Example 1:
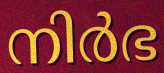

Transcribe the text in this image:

നിർഭ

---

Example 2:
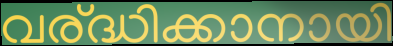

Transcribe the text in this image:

വര്ദ്ധിക്കാനായി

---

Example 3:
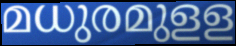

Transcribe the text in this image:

മധുരമുളള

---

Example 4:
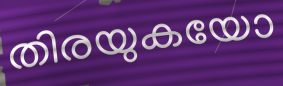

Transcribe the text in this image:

തിരയുകയോ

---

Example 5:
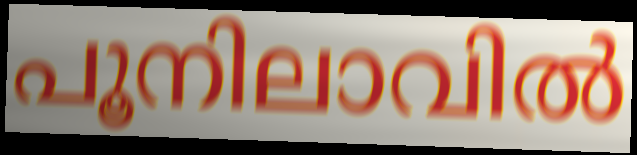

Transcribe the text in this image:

പൂനിലാവിൽ